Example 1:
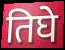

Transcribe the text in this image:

तिघे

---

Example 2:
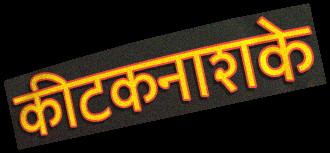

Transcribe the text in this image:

कीटकनाशके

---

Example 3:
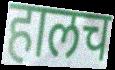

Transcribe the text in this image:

हालच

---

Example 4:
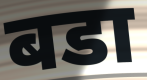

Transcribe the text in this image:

बडा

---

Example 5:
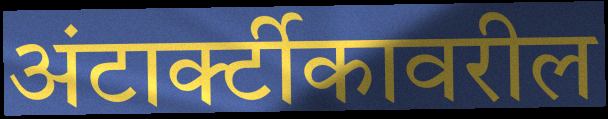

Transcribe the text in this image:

अंटार्क्टीकावरील